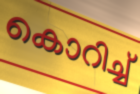
കൊറിച്ച്